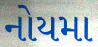
નોયમા